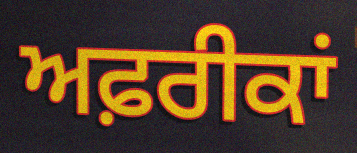
ਅਫ਼ਰੀਕਾਂ